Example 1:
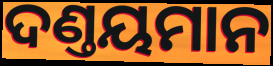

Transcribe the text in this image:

ଦଣ୍ତୟମାନ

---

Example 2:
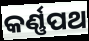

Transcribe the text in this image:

କର୍ଣ୍ଣପଥ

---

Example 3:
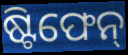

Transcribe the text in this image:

ଷ୍ଟିଫେନ୍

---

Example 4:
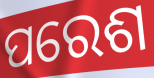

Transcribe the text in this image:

ପରେଶ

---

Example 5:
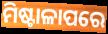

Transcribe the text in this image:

ମିଷ୍ଟାଳାପରେ